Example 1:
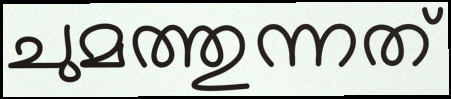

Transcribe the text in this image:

ചുമത്തുന്നത്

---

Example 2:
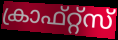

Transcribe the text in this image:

ക്രാഫ്റ്റ്സ്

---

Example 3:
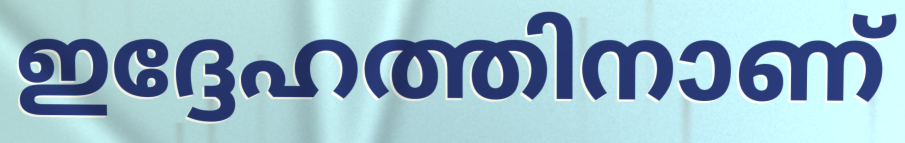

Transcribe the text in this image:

ഇദ്ദേഹത്തിനാണ്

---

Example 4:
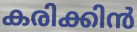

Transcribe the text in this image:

കരിക്കിൻ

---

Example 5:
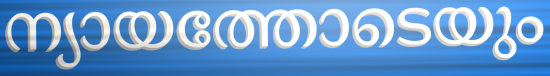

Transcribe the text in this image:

ന്യായത്തോടെയും